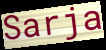
Sarja